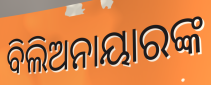
ବିଲିଅନାୟାରଙ୍କ